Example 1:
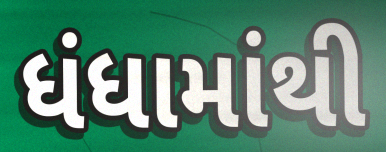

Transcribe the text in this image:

ધંધામાંથી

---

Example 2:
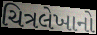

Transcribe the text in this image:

ચિત્રલેખાનો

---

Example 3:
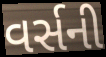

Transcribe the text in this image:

વર્સની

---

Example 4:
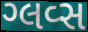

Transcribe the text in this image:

ગ્લવ્સ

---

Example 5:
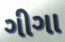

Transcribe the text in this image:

ગીગા